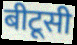
बीटूसी